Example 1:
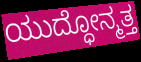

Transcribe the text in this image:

ಯುದ್ಧೋನ್ಮತ್ತ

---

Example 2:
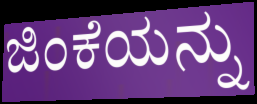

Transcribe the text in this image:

ಜಿಂಕೆಯನ್ನು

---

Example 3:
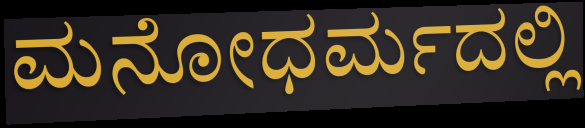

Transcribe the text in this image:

ಮನೋಧರ್ಮದಲ್ಲಿ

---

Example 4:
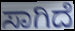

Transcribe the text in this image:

ಸಾಗಿದೆ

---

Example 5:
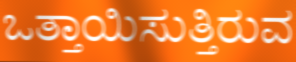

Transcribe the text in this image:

ಒತ್ತಾಯಿಸುತ್ತಿರುವ